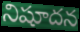
నిషూదన